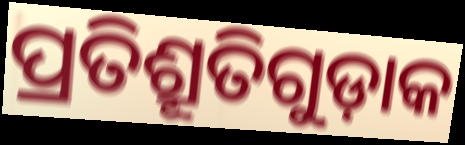
ପ୍ରତିଶ୍ରୂତିଗୁଡ଼ାକ